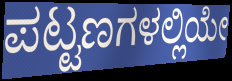
ಪಟ್ಟಣಗಳಲ್ಲಿಯೇ